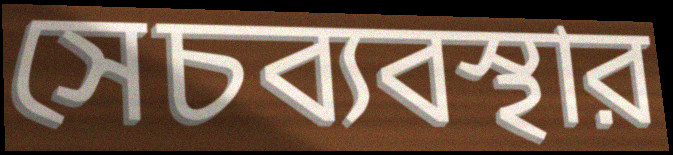
সেচব্যবস্থার